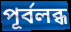
পূৰ্বলব্ধ